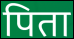
पिता